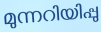
മുന്നറിയിപ്പു